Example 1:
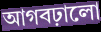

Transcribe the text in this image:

আগবঢ়ালো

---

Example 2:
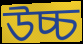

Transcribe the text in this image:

উচ্চ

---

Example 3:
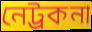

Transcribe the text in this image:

নেট্ৰকনা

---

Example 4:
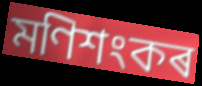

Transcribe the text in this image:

মণিশংকৰ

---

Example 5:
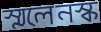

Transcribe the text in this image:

স্মলেনস্ক